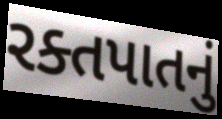
રક્તપાતનું